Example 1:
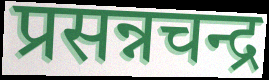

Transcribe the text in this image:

प्रसन्नचन्द्र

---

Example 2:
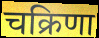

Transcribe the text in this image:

चक्रिणा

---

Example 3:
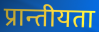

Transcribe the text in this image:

प्रान्तीयता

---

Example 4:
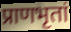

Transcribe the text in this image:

प्राणभृतां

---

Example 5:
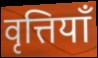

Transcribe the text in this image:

वृत्तियाँ